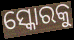
ସ୍କୋରକୁ